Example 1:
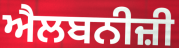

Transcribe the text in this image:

ਐਲਬਨੀਜ਼ੀ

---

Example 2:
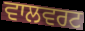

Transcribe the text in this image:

ਵਾਲਵਰਟ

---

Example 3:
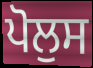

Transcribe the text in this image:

ਪੋਲੁਸ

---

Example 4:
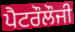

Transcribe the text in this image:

ਪੈਟਰੌਲੌਜੀ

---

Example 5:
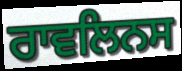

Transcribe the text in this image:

ਰਾਵਲਿਨਸ